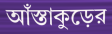
আঁস্তাকুড়ের